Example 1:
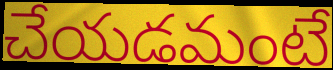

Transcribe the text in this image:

చేయడమంటే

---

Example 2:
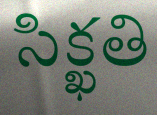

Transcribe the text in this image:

సిక్ఖతి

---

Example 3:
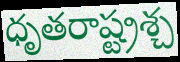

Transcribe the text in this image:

ధృతరాష్ట్రశ్చ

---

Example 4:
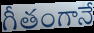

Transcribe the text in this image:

గీతంగానే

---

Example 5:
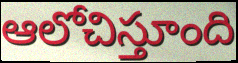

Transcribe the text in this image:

ఆలోచిస్తూంది